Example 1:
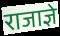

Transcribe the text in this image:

राजाज्ञे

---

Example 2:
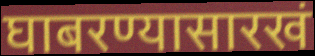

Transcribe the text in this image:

घाबरण्यासारखं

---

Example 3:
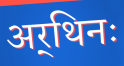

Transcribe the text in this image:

अर्थिनः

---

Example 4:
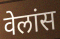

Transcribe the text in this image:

वेलांस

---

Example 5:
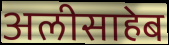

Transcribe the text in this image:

अलीसाहेब